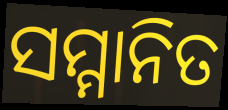
ସମ୍ମାନିତ